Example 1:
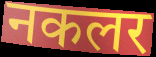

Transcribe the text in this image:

नकलर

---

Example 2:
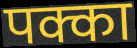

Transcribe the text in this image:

पक्का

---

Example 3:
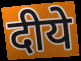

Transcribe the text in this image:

दीये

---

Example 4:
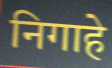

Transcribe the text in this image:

निगाहे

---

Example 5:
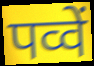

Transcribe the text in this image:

पव्वें